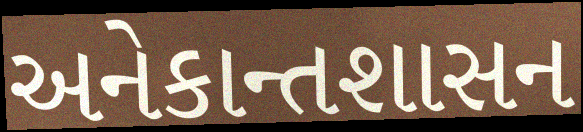
અનેકાન્તશાસન